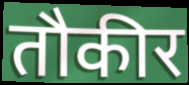
तौकीर